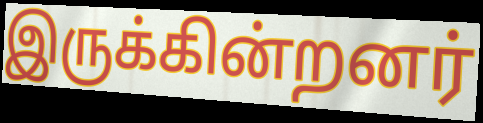
இருக்கின்றனர்